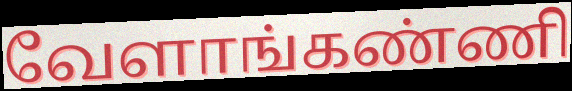
வேளாங்கண்ணி